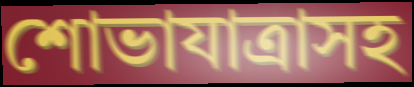
শোভাযাত্রাসহ